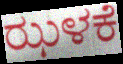
ಝಳಕೆ